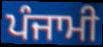
ਪੰਜਾਮੀ